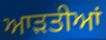
ਆਡ਼ਤੀਆਂ